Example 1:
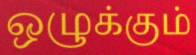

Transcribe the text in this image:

ஒழுக்கும்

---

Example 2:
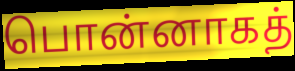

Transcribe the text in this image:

பொன்னாகத்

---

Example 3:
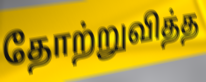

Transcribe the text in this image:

தோற்றுவித்த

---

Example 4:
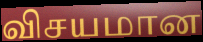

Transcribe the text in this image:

விசயமான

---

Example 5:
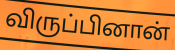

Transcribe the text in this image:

விருப்பினான்